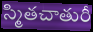
స్మితచాతురీ